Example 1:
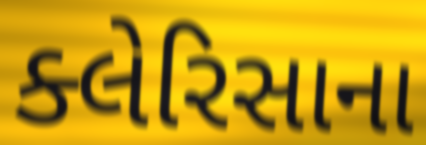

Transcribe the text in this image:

ક્લેરિસાના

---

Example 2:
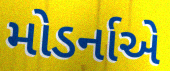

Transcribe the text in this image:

મોડર્નાએ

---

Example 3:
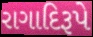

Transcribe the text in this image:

રાગાદિરૂપે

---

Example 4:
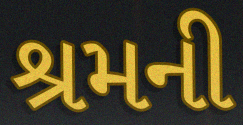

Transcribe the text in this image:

શ્રમની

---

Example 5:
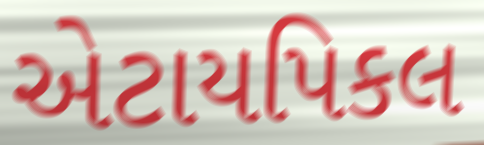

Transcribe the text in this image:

એટાયપિકલ